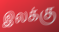
இலக்கு